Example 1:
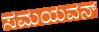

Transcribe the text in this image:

ಸಮಯವನ್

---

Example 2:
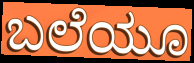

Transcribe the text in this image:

ಬಲೆಯೂ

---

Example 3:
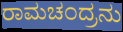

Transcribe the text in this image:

ರಾಮಚಂದ್ರನು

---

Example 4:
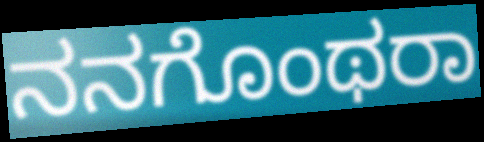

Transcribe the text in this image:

ನನಗೊಂಥರಾ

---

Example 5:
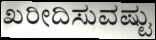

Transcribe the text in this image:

ಖರೀದಿಸುವಷ್ಟು